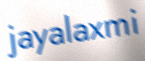
jayalaxmi